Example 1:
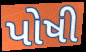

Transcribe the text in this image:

પોષી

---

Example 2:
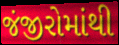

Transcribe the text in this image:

જંજીરોમાંથી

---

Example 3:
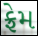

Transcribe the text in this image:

ફ્રેમ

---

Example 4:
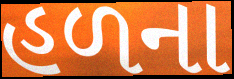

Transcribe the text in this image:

હળના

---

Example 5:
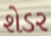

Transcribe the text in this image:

શેડર